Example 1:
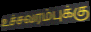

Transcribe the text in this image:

உச்சவரம்புக்கு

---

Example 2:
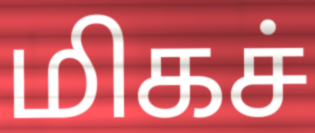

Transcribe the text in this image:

மிகச்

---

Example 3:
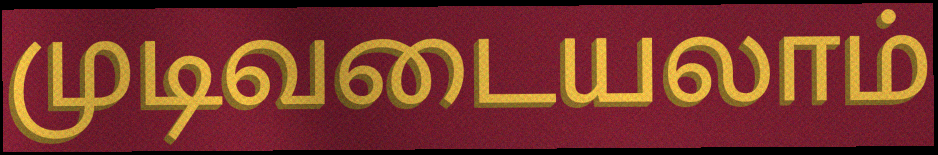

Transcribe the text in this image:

முடிவடையலாம்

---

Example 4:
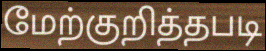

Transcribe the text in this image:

மேற்குறித்தபடி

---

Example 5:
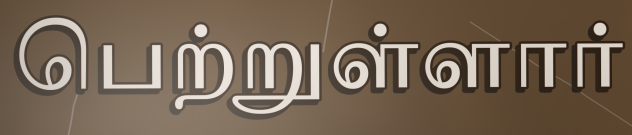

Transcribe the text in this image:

பெற்றுள்ளார்